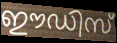
ഈഡിസ്